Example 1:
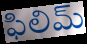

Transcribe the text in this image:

ఫిలిమ్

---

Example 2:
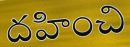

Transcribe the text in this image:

దహించి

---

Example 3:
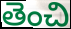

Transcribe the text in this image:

తెంచి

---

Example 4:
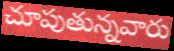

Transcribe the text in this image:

చూపుతున్నవారు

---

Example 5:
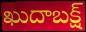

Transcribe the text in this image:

ఖుదాబక్ష్